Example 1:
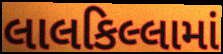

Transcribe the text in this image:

લાલકિલ્લામાં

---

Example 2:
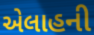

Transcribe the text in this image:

એલાહની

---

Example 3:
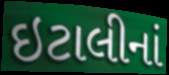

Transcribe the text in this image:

ઇટાલીનાં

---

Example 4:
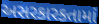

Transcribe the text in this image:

અસરકારકતામાં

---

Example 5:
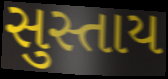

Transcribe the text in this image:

સુસ્તાય